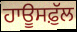
ਹਾਊਸਫ਼ੁੱਲ